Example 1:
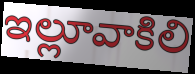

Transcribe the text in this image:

ఇల్లూవాకిలి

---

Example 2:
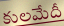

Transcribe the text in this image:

కులమేదీ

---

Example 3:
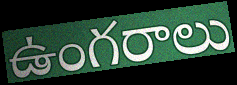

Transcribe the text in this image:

ఉంగరాలు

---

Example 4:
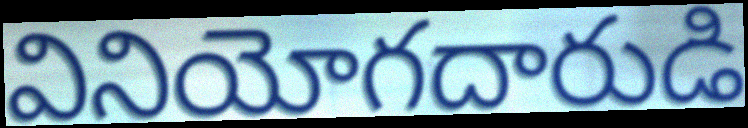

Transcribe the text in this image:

వినియోగదారుడి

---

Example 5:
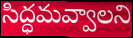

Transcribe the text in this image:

సిద్ధమవ్వాలని